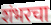
शंभरचा